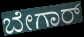
ಬೇಗಾರ್